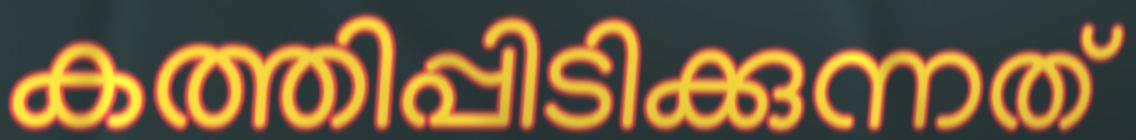
കത്തിപ്പിടിക്കുന്നത്